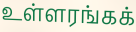
உள்ளரங்கக்